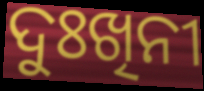
ଦୁଃଖିନୀ